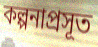
কল্পনাপ্ৰসূত